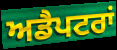
ਅਡੈਪਟਰਾਂ